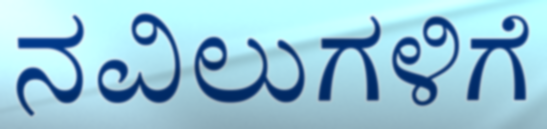
ನವಿಲುಗಳಿಗೆ